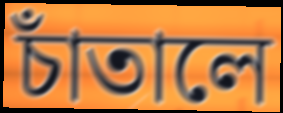
চাঁতালে